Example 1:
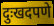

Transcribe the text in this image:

दुःखदपणे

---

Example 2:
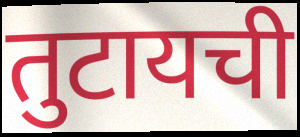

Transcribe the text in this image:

तुटायची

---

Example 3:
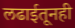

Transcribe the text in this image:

लढाईतूनही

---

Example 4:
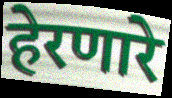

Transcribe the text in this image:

हेरणारे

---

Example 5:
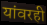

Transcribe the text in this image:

यांवरही